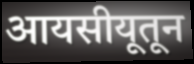
आयसीयूतून